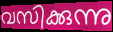
വസിക്കുന്നു